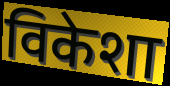
विकेशा